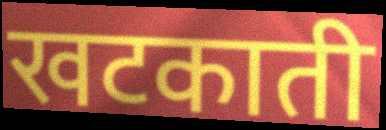
खटकाती